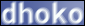
dhoko